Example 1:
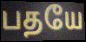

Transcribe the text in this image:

பதயே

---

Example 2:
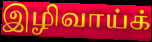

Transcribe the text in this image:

இழிவாய்க்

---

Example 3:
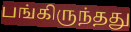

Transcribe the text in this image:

பங்கிருந்தது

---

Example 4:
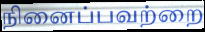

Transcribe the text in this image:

நினைப்பவற்றை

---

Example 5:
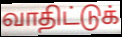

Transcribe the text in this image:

வாதிட்டுக்